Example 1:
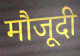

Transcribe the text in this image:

मौजूदी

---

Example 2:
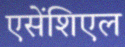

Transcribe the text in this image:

एसेंशिएल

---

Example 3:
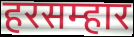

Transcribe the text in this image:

हरसम्हार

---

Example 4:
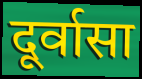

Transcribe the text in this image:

दूर्वासा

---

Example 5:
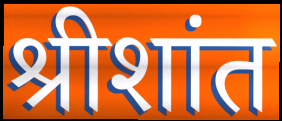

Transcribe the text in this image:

श्रीशांत